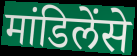
मांडिलेंसे